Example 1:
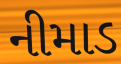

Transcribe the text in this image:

નીમાડ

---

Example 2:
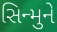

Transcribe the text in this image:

સિન્મુને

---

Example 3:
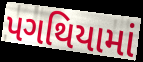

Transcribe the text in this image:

પગથિયામાં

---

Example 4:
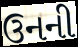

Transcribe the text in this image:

ઉનની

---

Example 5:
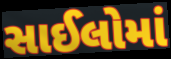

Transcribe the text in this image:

સાઈલોમાં